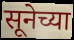
सूनेच्या